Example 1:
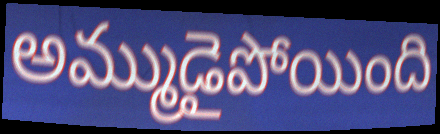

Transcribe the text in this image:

అమ్ముడైపోయింది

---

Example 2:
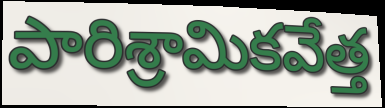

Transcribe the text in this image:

పారిశ్రామికవేత్త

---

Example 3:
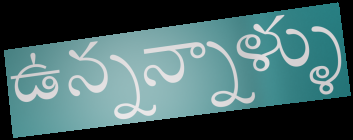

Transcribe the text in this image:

ఉన్నన్నాళ్ళు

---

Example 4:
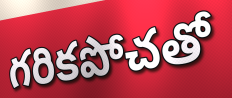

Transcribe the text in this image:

గరికపోచతో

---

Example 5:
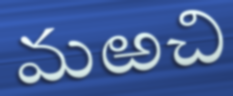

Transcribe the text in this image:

మఱచి